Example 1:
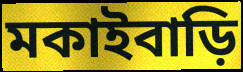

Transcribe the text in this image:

মকাইবাড়ি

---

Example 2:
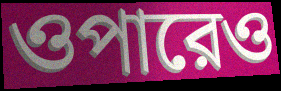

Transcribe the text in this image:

ওপারেও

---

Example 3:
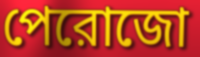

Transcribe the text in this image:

পেরোজো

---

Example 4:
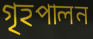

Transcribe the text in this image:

গৃহপালন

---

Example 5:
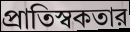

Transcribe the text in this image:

প্রাতিস্বকতার